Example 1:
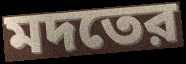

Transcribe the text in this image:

মদতের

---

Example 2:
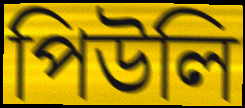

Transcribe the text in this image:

পিউলি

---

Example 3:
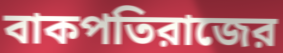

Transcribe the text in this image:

বাকপতিরাজের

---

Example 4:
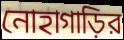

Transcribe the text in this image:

নোহাগাড়ির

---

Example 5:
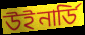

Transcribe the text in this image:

উইনার্ডি